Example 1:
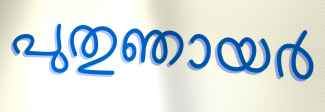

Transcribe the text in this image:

പുതുഞായർ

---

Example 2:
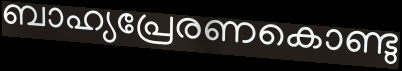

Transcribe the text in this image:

ബാഹ്യപ്രേരണകൊണ്ടു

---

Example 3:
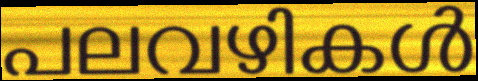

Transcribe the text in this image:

പലവഴികൾ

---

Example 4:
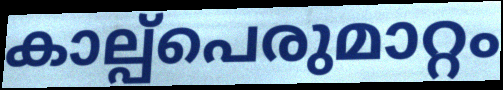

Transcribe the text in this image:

കാല്പ്പെരുമാറ്റം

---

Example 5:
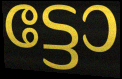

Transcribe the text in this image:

ട്ടോ